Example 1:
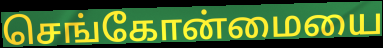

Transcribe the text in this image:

செங்கோன்மையை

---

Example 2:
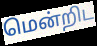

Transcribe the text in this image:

மென்றிட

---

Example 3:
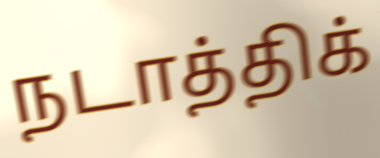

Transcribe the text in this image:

நடாத்திக்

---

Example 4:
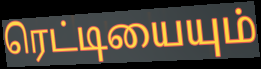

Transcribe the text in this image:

ரெட்டியையும்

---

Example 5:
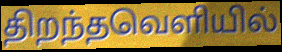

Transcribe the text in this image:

திறந்தவெளியில்